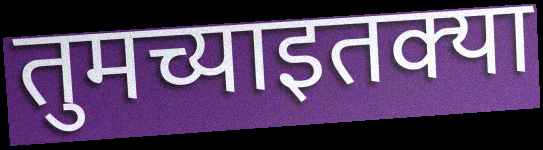
तुमच्याइतक्या